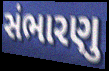
સંભારણુ